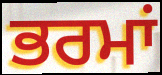
ਭਰਮਾਂ